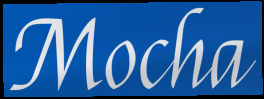
Mocha